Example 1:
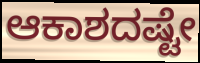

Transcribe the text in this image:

ಆಕಾಶದಷ್ಟೇ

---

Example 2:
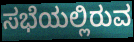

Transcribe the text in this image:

ಸಭೆಯಲ್ಲಿರುವ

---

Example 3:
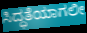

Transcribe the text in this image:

ಸಿದ್ಧತೆಯಾಗಲೀ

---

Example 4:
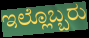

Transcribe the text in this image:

ಇಲ್ಲೊಬ್ಬರು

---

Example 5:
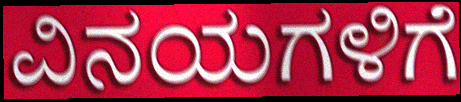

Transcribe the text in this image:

ವಿನಯಗಳಿಗೆ